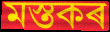
মস্তকৰ